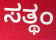
ಸತ್ಥಂ